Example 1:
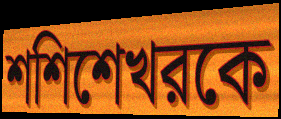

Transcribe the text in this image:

শশিশেখরকে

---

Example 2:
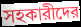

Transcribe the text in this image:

সহকারীদের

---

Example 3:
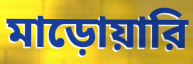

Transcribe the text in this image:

মাড়োয়ারি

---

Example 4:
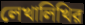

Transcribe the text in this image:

লেখালিখির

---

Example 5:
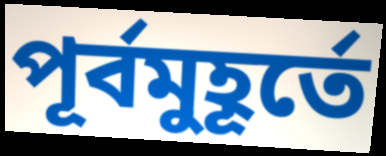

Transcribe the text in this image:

পূর্বমুহূর্তে